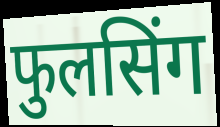
फुलसिंग